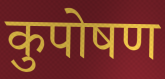
कुपोषण